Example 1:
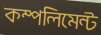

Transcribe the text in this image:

কম্পলিমেন্ট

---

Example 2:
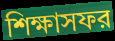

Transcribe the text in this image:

শিক্ষাসফর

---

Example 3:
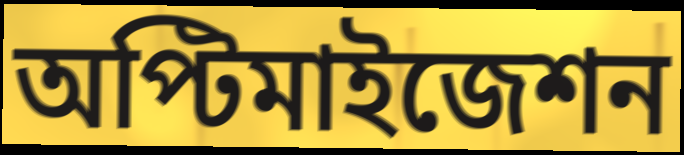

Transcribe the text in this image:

অপ্টিমাইজেশন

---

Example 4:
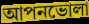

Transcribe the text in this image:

আপনভোলা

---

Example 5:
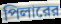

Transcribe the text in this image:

পিলারের